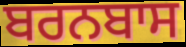
ਬਰਨਬਾਸ